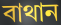
বাথান